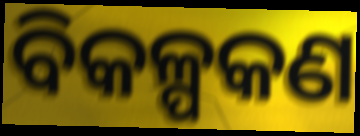
ବିକଳ୍ପକଣ